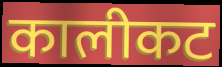
कालीकट